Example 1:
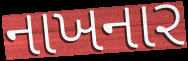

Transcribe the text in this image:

નાખનાર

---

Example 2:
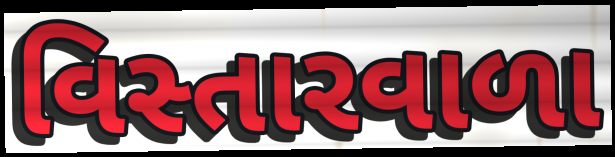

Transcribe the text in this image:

વિસ્તારવાળા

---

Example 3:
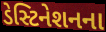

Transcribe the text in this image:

ડેસ્ટિનેશનના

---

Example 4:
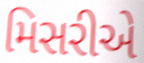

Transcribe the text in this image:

મિસરીએ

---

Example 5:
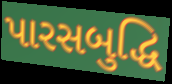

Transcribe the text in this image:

પારસબુદ્ધિ